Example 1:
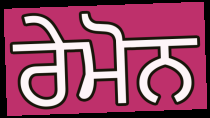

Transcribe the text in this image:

ਰੇਮੋਨ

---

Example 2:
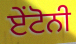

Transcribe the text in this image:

ਏਂਟੋਨੀ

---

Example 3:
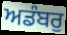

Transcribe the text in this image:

ਅਡੰਬਰੁ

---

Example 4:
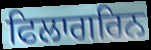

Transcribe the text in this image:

ਫਿਲਾਗਰਿਨ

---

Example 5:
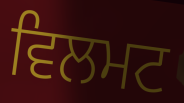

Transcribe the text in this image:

ਵਿਲਮਟ